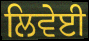
ਲਿਵੇਈ